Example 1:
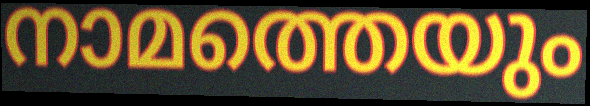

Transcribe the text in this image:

നാമത്തെയും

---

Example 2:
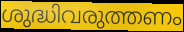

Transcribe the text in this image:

ശുദ്ധിവരുത്തണം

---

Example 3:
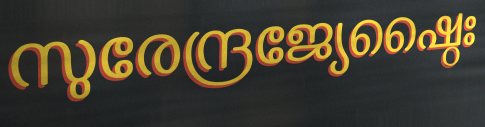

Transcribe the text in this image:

സുരേന്ദ്രജ്യേഷ്ഠൈഃ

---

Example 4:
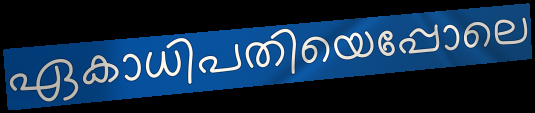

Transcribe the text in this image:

ഏകാധിപതിയെപ്പോലെ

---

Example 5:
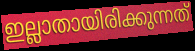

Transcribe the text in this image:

ഇല്ലാതായിരിക്കുന്നത്